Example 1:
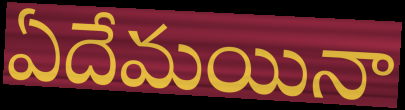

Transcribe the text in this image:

ఏదేమయినా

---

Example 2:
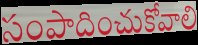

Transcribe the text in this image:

సంపాదించుకోవాలి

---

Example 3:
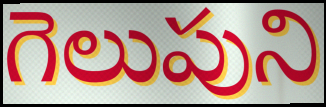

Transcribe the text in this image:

గెలుపుని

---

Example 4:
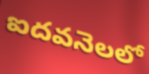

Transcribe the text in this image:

ఐదవనెలలో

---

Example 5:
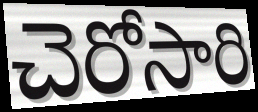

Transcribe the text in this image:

చెరోసారి